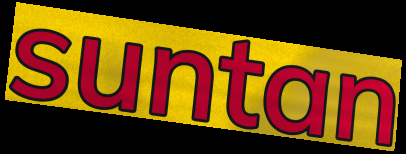
suntan